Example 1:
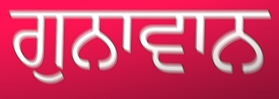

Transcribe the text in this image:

ਗੁਨਾਵਾਨ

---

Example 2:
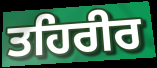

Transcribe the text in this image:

ਤਹਿਰੀਰ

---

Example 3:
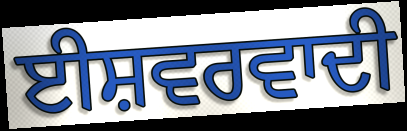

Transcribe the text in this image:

ਈਸ਼ਵਰਵਾਦੀ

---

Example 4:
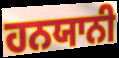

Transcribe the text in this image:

ਹਨਯਾਨੀ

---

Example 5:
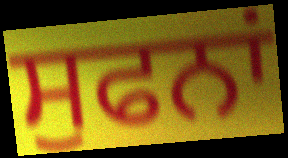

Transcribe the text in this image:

ਸੁਫਨਾਂ